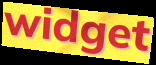
widget